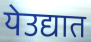
येउद्यात